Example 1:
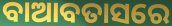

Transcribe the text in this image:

ବାଆବତାସରେ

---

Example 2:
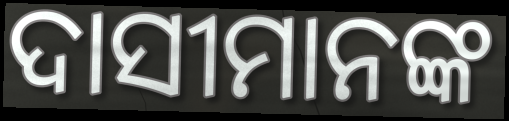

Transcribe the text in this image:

ଦାସୀମାନଙ୍କ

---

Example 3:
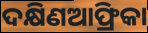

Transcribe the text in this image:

ଦକ୍ଷିଣଆଫ୍ରିକା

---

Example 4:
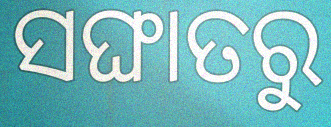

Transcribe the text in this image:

ସଙ୍ଘାତରୁ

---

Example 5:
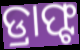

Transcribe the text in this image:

ଡ୍ରାଫ୍ଟ